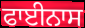
ਫਾਈਨਾਸ